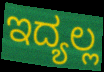
ಇದ್ಯಲ್ಲ